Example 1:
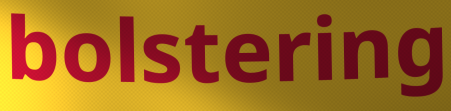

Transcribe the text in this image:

bolstering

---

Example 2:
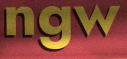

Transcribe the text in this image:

ngw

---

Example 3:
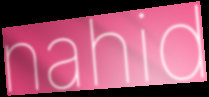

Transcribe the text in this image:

nahid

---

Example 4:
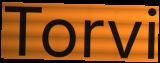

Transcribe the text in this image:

Torvi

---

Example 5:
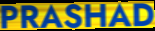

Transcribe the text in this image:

PRASHAD